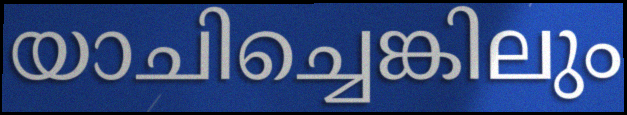
യാചിച്ചെങ്കിലും